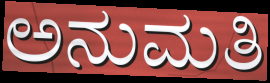
ಅನುಮತಿ